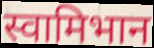
स्वामिभान